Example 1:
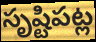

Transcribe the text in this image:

సృష్టిపట్ల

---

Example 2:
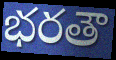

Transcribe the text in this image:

భరతౌ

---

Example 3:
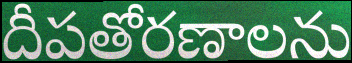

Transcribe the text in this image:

దీపతోరణాలను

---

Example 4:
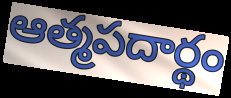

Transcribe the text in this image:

ఆత్మపదార్థం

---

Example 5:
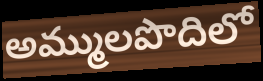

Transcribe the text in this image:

అమ్ములపొదిలో